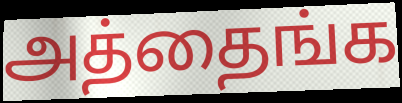
அத்தைங்க